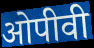
ओपीवी